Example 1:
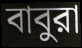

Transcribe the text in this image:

বাবুরা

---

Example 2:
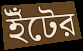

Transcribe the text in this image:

ইঁটের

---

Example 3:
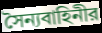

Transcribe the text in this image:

সৈন্যবাহিনীর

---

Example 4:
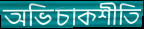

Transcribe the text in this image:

অভিচাকশীতি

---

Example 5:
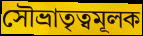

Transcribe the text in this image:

সৌভ্রাতৃত্বমূলক